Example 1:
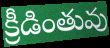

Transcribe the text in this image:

క్రీడింతువు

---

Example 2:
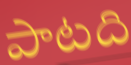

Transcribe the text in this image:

పాటది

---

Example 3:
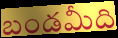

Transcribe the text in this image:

బండమీది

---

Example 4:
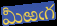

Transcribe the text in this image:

మీఱఁగ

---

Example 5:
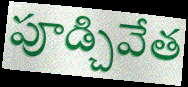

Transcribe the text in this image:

పూడ్చివేత